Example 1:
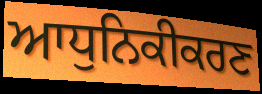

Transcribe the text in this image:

ਆਧੁਨਿਕੀਕਰਣ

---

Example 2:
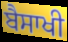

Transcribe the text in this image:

ਬੈਸਾਖੀ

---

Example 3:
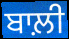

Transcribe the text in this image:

ਬਾਲ਼ੀ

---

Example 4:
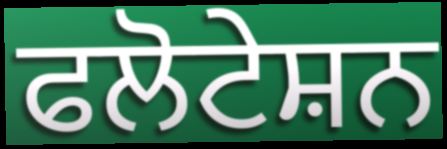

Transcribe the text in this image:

ਫਲੋਟੇਸ਼ਨ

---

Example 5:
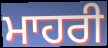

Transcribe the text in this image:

ਮਾਹਰੀ